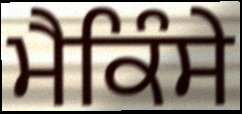
ਮੈਕਿੰਸੇ